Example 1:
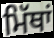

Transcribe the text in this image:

ਮਿੱਥਾਂ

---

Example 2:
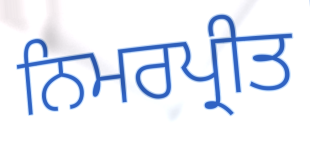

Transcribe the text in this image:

ਨਿਮਰਪ੍ਰੀਤ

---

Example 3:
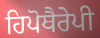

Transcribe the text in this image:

ਹਿਪੋਥੈਰੇਪੀ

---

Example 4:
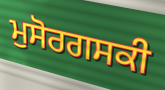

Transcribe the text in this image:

ਮੁਸੋਰਗਸਕੀ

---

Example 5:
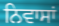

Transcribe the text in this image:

ਨਿਵਾਸਾਂ